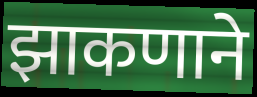
झाकणाने